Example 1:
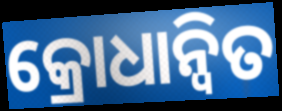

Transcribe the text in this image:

କ୍ରୋଧାନ୍ୱିତ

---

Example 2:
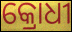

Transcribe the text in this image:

କ୍ରୋଧୀ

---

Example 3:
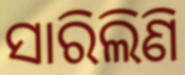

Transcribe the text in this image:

ସାରିଲିଣି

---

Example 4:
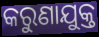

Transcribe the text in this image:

କରୁଣାଯୁକ୍ତ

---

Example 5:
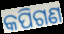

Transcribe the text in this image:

କପିଗଣ